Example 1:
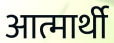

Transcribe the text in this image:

आत्मार्थी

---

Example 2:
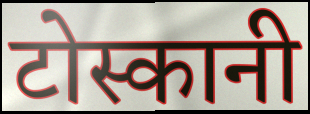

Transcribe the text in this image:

टोस्कानी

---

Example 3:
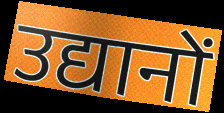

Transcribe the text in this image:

उद्यानों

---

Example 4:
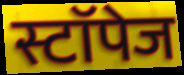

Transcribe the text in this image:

स्टॉपेज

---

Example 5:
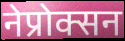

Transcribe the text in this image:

नेप्रोक्सन